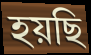
হয়ছি